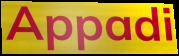
Appadi